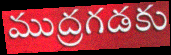
ముద్రగడకు